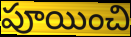
పూయించి